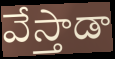
వేస్తాడా